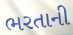
ભરતાની